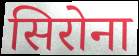
सिरोना